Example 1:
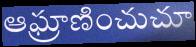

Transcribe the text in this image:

ఆఘ్రాణించుచూ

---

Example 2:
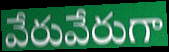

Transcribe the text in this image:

వేరువేరుగా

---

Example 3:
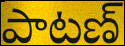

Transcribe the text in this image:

పాటణ్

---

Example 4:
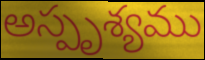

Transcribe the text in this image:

అస్పృశ్యము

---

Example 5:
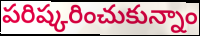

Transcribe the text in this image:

పరిష్కరించుకున్నాం